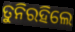
ତୁନିରହିଲେ